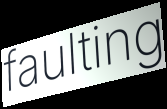
faulting